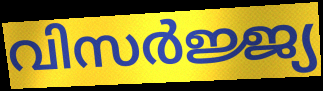
വിസർജ്ജ്യ